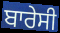
ਬਾਰੇਸੀ